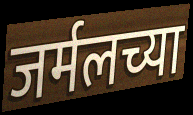
जर्मलच्या